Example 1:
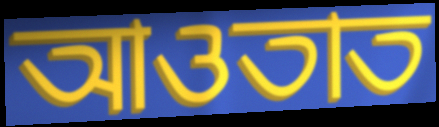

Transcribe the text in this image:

আওতাত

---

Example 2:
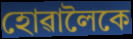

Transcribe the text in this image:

হোৱালৈকে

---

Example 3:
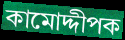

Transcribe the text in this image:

কামোদ্দীপক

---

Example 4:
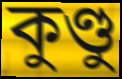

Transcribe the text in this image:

কুণ্ডু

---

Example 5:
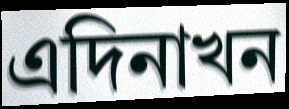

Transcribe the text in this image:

এদিনাখন